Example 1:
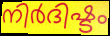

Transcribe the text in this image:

നിർദിഷ്ടം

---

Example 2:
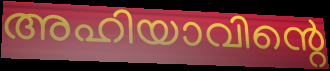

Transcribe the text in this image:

അഹിയാവിന്റെ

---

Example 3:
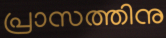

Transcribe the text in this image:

പ്രാസത്തിനു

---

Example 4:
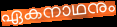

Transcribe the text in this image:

ഏകനാഥനും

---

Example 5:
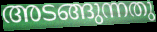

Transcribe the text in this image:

അടങ്ങുന്നതു